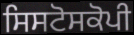
ਸਿਸਟੋਸਕੋਪੀ